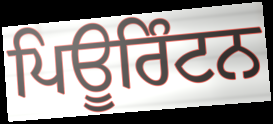
ਪਿਊਰਿੰਟਨ